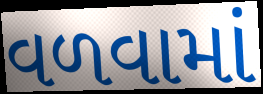
વળવામાં